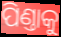
ପିଣ୍ତାକୁ